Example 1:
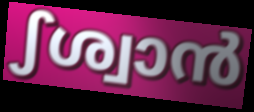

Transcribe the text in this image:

ഽശ്വാൻ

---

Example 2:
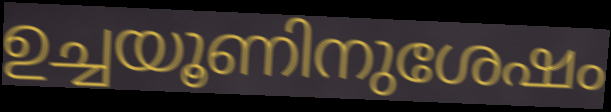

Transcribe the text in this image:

ഉച്ചയൂണിനുശേഷം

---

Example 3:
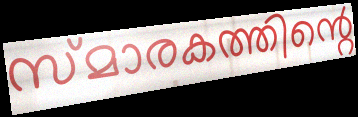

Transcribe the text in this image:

സ്മാരകത്തിന്റെ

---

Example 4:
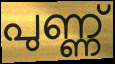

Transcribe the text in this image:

പുണ്ണ്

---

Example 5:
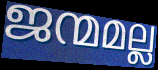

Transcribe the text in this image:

ജന്മമല്ല